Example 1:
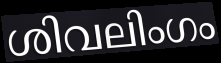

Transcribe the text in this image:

ശിവലിംഗം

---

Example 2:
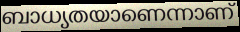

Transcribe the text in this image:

ബാധ്യതയാണെന്നാണ്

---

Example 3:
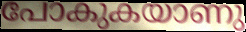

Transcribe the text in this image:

പോകുകയാണു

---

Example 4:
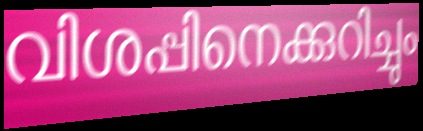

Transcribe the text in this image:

വിശപ്പിനെക്കുറിച്ചും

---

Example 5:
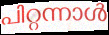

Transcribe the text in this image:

പിറ്റന്നാൾ